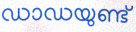
ഡാഡയുണ്ട്